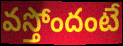
వస్తోందంటే